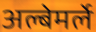
अल्बेमर्ले